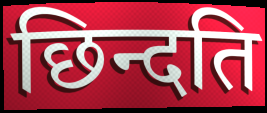
छिन्दति